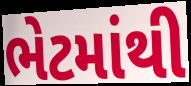
ભેટમાંથી